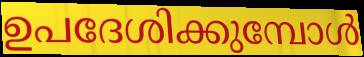
ഉപദേശിക്കുമ്പോൾ